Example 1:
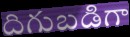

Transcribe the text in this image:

దిగుబడిగా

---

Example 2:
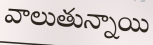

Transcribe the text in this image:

వాలుతున్నాయి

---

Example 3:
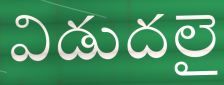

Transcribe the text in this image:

విడుదలై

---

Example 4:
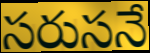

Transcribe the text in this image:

సరుసనే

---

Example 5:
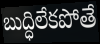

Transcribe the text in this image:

బుద్ధిలేకపోతే